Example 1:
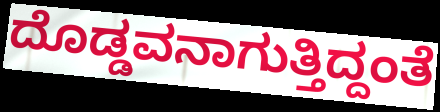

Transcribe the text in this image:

ದೊಡ್ಡವನಾಗುತ್ತಿದ್ದಂತೆ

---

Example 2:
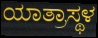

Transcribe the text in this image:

ಯಾತ್ರಾಸ್ಥಳ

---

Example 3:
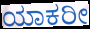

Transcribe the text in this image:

ಯಾಕರೀ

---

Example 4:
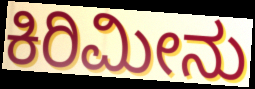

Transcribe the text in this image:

ಕಿರಿಮೀನು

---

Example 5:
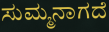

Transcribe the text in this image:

ಸುಮ್ಮನಾಗದೆ